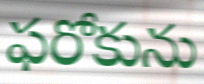
ఫరోకును